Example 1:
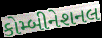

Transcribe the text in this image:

કોમ્બીનેશનલ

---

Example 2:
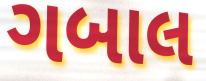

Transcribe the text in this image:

ગબાલ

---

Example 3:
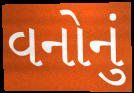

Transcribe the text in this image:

વનોનું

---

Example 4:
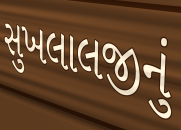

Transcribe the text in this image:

સુખલાલજીનું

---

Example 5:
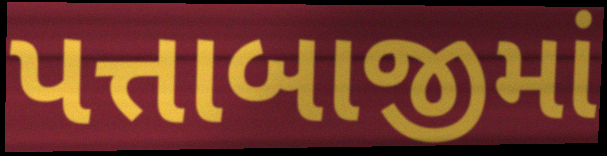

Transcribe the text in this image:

પત્તાબાજીમાં